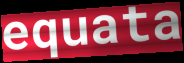
equata